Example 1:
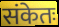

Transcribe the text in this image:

संकेतः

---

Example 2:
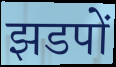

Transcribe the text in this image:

झडपों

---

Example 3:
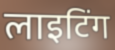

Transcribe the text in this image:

लाइटिंग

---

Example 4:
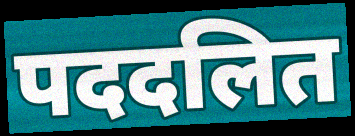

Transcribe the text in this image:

पददलित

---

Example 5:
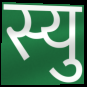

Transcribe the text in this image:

स्यु